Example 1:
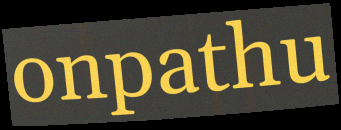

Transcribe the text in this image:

onpathu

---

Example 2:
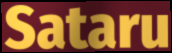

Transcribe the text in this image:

Sataru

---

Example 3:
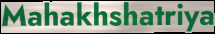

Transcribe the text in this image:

Mahakhshatriya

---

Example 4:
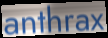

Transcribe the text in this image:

anthrax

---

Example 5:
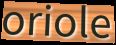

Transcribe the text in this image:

oriole